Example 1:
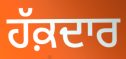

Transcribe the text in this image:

ਹੱਕ਼ਦਾਰ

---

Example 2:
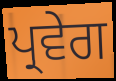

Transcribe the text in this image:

ਪ੍ਰਵੇਗ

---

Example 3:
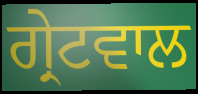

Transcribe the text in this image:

ਗ੍ਰੇਟਵਾਲ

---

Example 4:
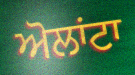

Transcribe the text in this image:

ਅੋਲਾਂਟਾ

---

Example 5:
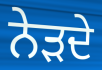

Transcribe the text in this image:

ਨੇੜਦੇ